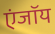
एंजॉय